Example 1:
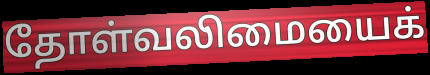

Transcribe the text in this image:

தோள்வலிமையைக்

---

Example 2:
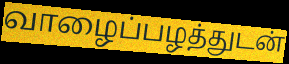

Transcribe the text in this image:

வாழைப்பழத்துடன்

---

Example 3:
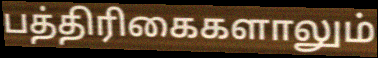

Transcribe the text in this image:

பத்திரிகைகளாலும்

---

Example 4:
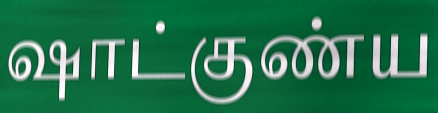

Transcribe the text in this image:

ஷாட்குண்ய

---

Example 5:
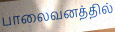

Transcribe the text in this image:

பாலைவனத்தில்